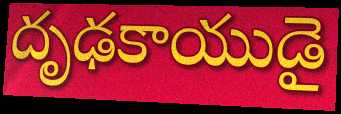
దృఢకాయుడై